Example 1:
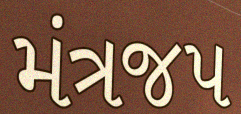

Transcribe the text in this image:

મંત્રજપ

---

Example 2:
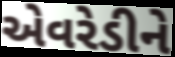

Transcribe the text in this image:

એવરેડીને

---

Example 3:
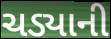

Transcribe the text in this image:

ચડ્યાની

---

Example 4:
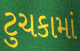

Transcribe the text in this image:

ટુચકામાં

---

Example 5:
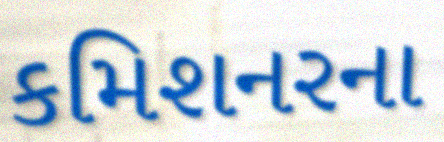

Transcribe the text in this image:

કમિશનરના